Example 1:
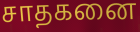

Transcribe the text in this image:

சாதகனை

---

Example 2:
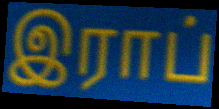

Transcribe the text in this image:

இராப்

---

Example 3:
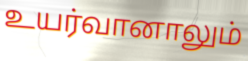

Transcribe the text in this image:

உயர்வானாலும்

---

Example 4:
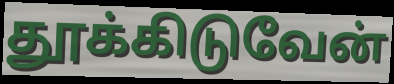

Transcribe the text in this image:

தூக்கிடுவேன்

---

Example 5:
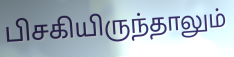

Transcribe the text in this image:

பிசகியிருந்தாலும்